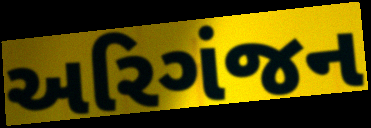
અરિગંજન